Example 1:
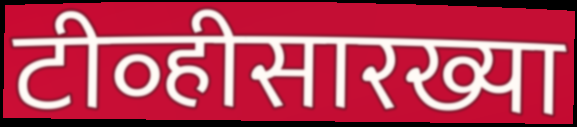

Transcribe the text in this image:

टीव्हीसारख्या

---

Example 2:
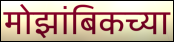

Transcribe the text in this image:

मोझांबिकच्या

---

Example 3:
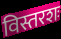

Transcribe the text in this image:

विस्तरशः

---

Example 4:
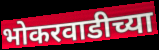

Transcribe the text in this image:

भोकरवाडीच्या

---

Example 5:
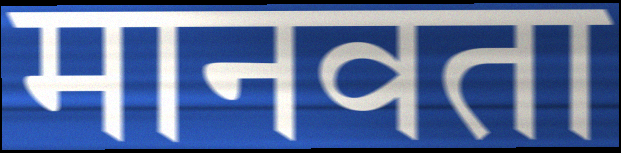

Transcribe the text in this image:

मानवता